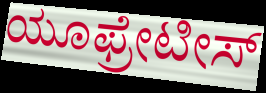
ಯೂಫ್ರೇಟೀಸ್